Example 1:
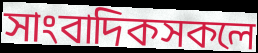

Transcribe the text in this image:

সাংবাদিকসকলে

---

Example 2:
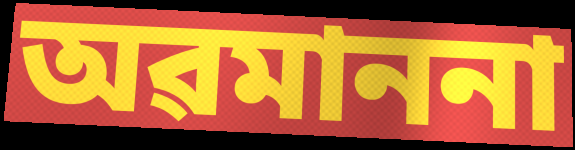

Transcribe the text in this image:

অৱমাননা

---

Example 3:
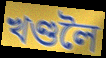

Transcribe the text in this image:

খণ্ডলৈ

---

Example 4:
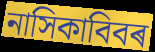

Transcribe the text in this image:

নাসিকাবিবৰ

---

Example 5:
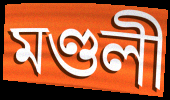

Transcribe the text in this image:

মণ্ডলী